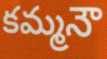
కమ్మనౌ